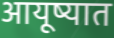
आयूष्यात